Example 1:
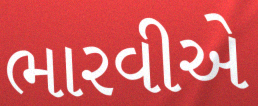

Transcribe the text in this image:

ભારવીએ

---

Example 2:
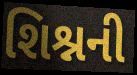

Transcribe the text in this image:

શિશ્નની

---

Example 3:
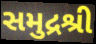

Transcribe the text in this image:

સમુદ્રશ્રી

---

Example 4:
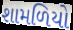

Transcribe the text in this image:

શામળિયો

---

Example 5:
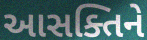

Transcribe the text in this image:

આસક્તિને